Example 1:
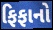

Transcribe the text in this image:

ફિફાનો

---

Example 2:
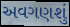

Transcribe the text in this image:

અવગણશું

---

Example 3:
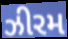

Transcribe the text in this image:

ઝીરમ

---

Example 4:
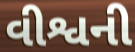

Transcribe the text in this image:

વીશ્વની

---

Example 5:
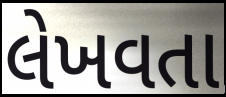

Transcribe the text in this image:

લેખવતા